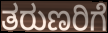
ತರುಣರಿಗೆ